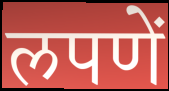
लपणें